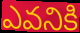
ఎవనికి